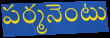
పర్మనెంటు